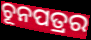
ଚୂନପତ୍ରର